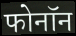
फोनॉन